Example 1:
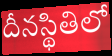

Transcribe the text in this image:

దీనస్థితిలో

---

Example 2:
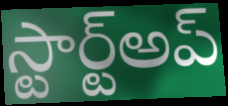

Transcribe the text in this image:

స్టార్ట్అప్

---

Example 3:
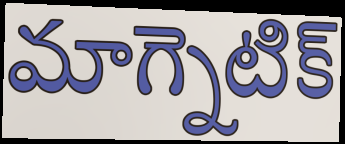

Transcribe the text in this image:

మాగ్నెటిక్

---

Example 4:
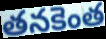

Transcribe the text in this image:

తనకెంత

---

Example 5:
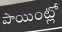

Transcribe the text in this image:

పాయింట్లో